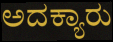
ಅದಕ್ಯಾರು